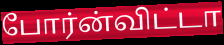
போர்ன்விட்டா